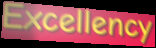
Excellency